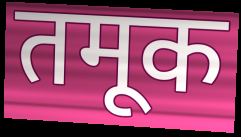
तमूक